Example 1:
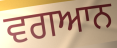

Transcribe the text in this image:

ਵਗਆਨ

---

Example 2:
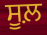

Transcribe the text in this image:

ਸੂਲ਼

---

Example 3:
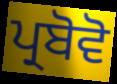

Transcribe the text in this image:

ਪ੍ਰਬੋਵੋ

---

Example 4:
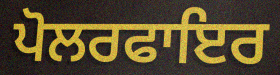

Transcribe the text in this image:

ਪੋਲਰਫਾਇਰ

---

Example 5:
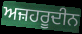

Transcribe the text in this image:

ਅਜ਼ਹਰੂਦੀਨ